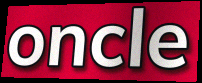
oncle